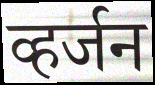
व्हर्जन